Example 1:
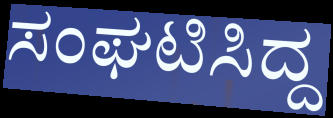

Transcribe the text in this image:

ಸಂಘಟಿಸಿದ್ದ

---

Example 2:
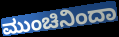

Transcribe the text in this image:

ಮುಂಚಿನಿಂದಾ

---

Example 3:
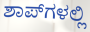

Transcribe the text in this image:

ಶಾಪ್‌ಗಳಲ್ಲಿ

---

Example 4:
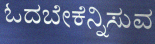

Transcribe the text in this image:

ಓದಬೇಕೆನ್ನಿಸುವ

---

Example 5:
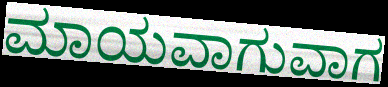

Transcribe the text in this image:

ಮಾಯವಾಗುವಾಗ